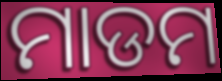
ମାଡମ